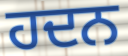
ਹਦਨ